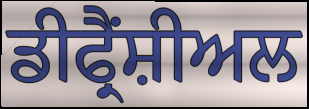
ਡੀਫ੍ਰੈਂਸ਼ੀਅਲ